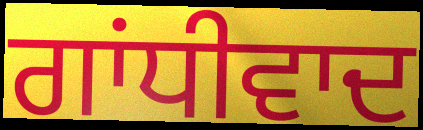
ਗਾਂਧੀਵਾਦ